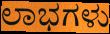
ಲಾಭಗಳು